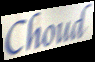
Choud